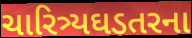
ચારિત્ર્યઘડતરના